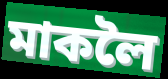
মাকলৈ